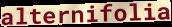
alternifolia